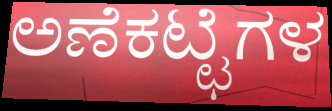
ಅಣೆಕಟ್ಟೆಗಳ